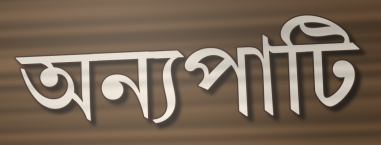
অন্যপাটি